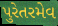
પુરેતરમેવ